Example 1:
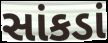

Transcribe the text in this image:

સાંકડાં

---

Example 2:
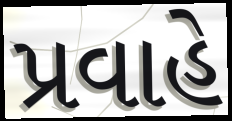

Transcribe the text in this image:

પ્રવાહે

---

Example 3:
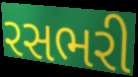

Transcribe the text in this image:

રસભરી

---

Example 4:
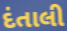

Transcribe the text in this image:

દંતાલી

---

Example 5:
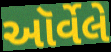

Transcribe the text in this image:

ઑર્વેલે